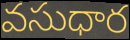
వసుధార